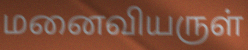
மனைவியருள்